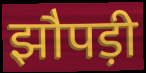
झौपड़ी